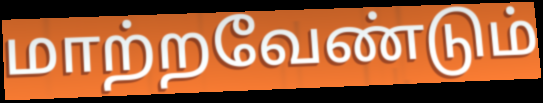
மாற்றவேண்டும்